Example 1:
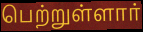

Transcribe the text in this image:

பெற்றுள்ளார்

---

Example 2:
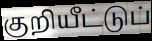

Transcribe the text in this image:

குறியீட்டுப்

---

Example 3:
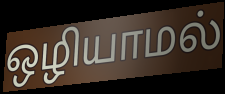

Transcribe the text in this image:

ஒழியாமல்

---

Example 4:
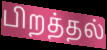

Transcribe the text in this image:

பிறத்தல்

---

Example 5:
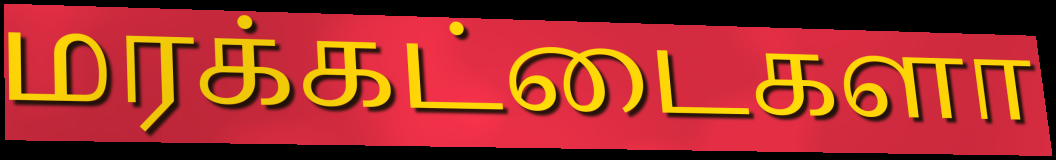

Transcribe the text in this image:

மரக்கட்டைகளா